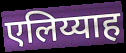
एलिय्याह